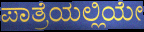
ಪಾತ್ರೆಯಲ್ಲಿಯೇ